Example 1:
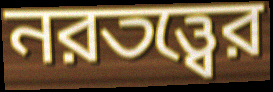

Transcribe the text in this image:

নরতত্ত্বের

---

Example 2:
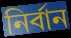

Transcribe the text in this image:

নির্বান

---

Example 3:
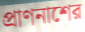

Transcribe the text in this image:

প্রাণনাশের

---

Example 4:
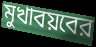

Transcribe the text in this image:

মুখাবয়বের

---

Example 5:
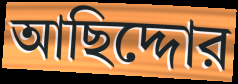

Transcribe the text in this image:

আছিদ্দোর